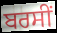
ਬਰਸੀਂ